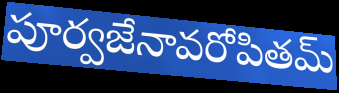
పూర్వజేనావరోపితమ్